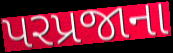
પરપ્રજાના